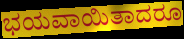
ಭಯವಾಯಿತಾದರೂ